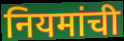
नियमांची